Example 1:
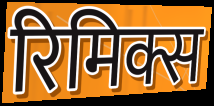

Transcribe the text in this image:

रिमिक्स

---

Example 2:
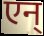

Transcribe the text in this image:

एन्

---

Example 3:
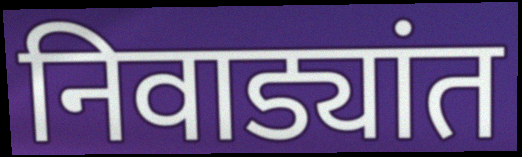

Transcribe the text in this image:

निवाड्यांत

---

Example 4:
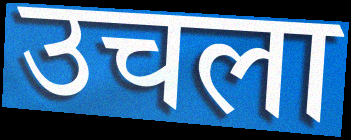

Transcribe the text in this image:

उचला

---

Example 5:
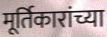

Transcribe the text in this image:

मूर्तिकारांच्या